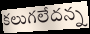
కలుగలేదన్న